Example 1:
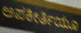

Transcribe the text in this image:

ಅಪಕೀರ್ತಿಯೂ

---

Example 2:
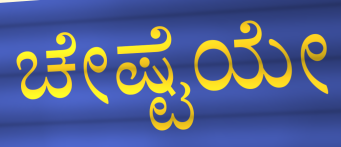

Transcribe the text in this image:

ಚೇಷ್ಟೆಯೇ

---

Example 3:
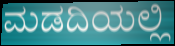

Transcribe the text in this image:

ಮಡದಿಯಲ್ಲಿ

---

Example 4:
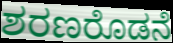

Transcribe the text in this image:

ಶರಣರೊಡನೆ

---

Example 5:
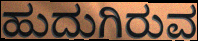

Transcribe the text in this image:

ಹುದುಗಿರುವ